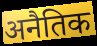
अनैतिक